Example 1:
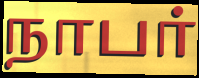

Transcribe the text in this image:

நாபர்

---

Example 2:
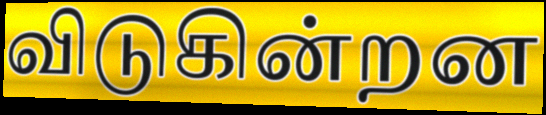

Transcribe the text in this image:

விடுகின்றன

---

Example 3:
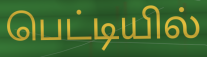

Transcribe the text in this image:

பெட்டியில்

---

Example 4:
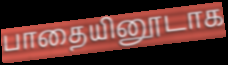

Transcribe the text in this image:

பாதையினூடாக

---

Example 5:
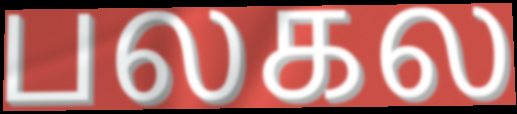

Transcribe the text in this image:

பலகல